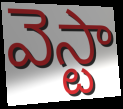
వెస్టా